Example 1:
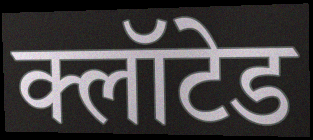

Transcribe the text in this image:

क्लॉटेड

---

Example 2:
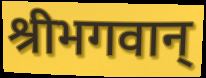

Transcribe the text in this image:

श्रीभगवान्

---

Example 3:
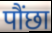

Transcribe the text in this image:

पौंछा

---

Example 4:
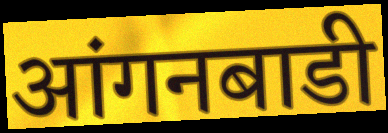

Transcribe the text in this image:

आंगनबाडी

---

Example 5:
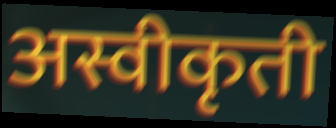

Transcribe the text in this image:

अस्वीकृती